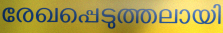
രേഖപ്പെടുത്തലായി